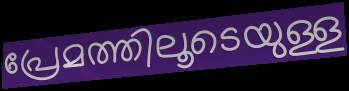
പ്രേമത്തിലൂടെയുള്ള